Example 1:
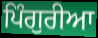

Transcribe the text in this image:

ਪਿੰਗੁਰੀਆ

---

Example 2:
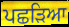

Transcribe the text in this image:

ਪਛੜਿਆ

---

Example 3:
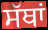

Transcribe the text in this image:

ਸੱਥਾਂ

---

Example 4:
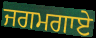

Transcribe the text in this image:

ਜਗਮਗਾਏ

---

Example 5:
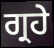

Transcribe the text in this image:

ਗ੍ਰਹੇ